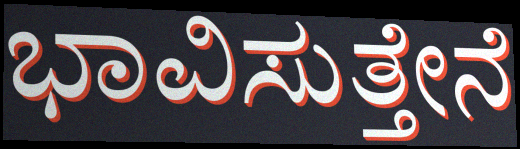
ಭಾವಿಸುತ್ತೇನೆ